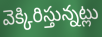
వెక్కిరిస్తున్నట్లు